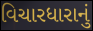
વિચારધારાનું